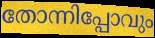
തോന്നിപ്പോവും